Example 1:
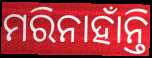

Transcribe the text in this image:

ମରିନାହାଁନ୍ତି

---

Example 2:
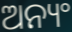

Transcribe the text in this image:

ଅନ୍ୟଂ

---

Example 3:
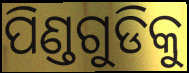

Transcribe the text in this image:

ପିଣ୍ଡଗୁଡିକୁ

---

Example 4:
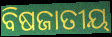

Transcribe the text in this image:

ବିଷଜାତୀୟ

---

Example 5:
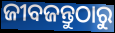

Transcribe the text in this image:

ଜୀବଜନ୍ତୁଠାରୁ